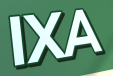
IXA